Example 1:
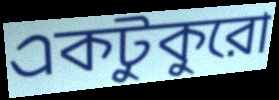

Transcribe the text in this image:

একটুকুরো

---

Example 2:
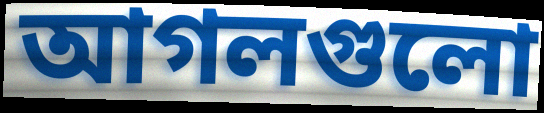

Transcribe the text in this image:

আগলগুলো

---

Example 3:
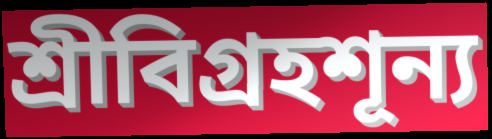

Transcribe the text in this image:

শ্রীবিগ্রহশূন্য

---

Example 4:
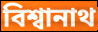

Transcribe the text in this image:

বিশ্বানাথ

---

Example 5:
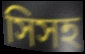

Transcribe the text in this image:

সিসহ